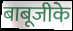
बाबूजीके